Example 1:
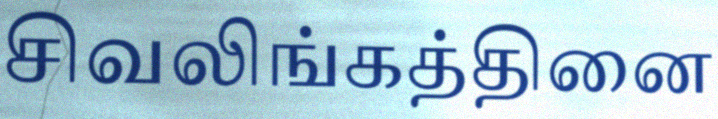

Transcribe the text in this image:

சிவலிங்கத்தினை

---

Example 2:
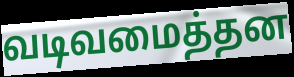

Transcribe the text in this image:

வடிவமைத்தன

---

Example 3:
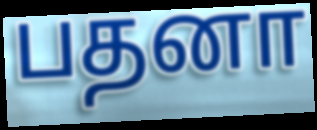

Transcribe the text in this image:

பதனா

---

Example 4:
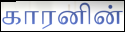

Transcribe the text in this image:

காரனின்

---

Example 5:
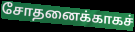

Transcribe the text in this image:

சோதனைக்காகச்